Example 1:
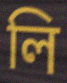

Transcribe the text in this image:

লি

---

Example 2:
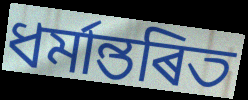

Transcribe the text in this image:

ধৰ্মান্তৰিত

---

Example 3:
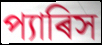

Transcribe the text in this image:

প্যাৰিস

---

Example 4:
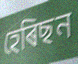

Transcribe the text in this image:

হেৰিছন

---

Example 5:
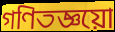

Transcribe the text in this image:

গণিতজ্ঞয়ো